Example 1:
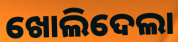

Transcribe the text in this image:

ଖୋଲିଦେଲା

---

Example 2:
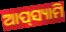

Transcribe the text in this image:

ଆପ୍‌ସ୍ୟାମି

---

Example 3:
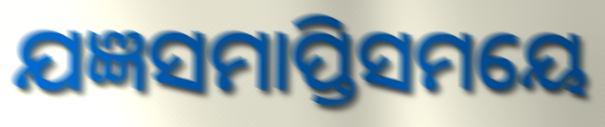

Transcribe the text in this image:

ଯଜ୍ଞସମାପ୍ତିସମୟେ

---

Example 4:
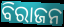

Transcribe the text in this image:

ବିରାଜନ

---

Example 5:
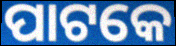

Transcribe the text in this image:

ପାଟକେ